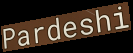
Pardeshi